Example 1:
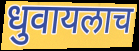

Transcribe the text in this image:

धुवायलाच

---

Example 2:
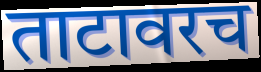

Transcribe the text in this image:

ताटावरच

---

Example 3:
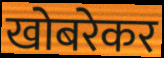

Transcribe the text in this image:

खोबरेकर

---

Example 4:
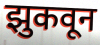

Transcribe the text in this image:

झुकवून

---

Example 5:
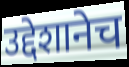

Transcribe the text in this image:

उद्देशानेच